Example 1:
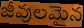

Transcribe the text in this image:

జీవులమైన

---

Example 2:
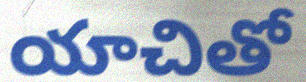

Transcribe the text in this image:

యాచితో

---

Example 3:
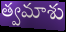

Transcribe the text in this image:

త్వమాశు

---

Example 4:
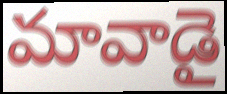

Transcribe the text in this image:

మావాడై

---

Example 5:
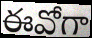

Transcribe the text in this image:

ఈవోగా